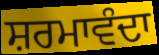
ਸ਼ਰਮਾਵੰਦਾ